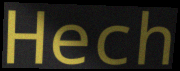
Hech